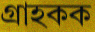
গ্ৰাহকক